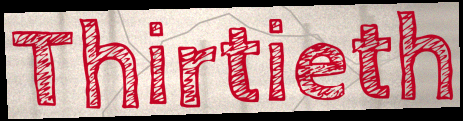
Thirtieth